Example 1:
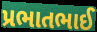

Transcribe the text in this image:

પ્રભાતભાઈ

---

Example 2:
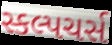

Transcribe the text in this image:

સ્કલ્પચર્સ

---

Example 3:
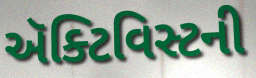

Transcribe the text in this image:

ઍક્ટિવિસ્ટની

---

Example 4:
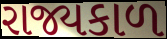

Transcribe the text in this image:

રાજ્યકાળ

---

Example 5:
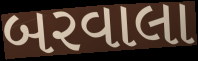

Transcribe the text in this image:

બરવાલા